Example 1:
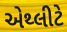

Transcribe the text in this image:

એથ્લીટે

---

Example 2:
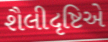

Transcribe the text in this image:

શૈલીદૃષ્ટિએ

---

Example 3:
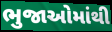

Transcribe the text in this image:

ભુજાઓમાંથી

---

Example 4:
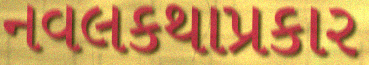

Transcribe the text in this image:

નવલકથાપ્રકાર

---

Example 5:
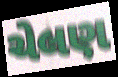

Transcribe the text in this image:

ચેલણ